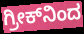
ಗ್ರೀಕ್‌ನಿಂದ